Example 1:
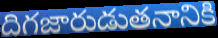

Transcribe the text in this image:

దిగజారుడుతనానికి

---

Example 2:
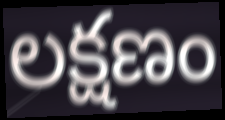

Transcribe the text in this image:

లక్షణం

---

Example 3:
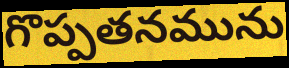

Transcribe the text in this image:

గొప్పతనమును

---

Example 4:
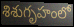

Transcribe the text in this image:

శిశుగృహంలో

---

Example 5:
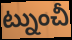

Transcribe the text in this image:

ట్నుంచీ